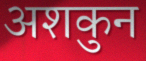
अशकुन